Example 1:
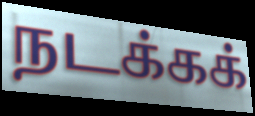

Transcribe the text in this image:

நடக்கக்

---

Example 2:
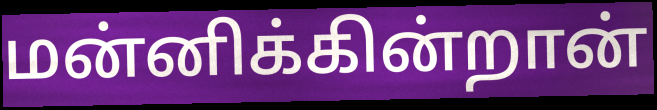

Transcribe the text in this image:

மன்னிக்கின்றான்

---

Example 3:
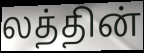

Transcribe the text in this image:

லத்தின்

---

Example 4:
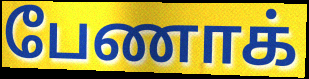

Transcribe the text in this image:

பேணாக்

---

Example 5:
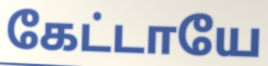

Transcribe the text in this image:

கேட்டாயே